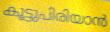
കൂട്ടുപിരിയാൻ